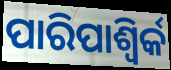
ପାରିପାଶ୍ୱିର୍କ